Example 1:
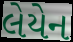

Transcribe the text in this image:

લેયેન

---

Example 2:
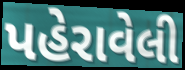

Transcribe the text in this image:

પહેરાવેલી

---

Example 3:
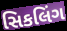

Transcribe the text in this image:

સિકલિંગ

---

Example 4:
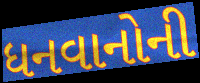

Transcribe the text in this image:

ધનવાનોની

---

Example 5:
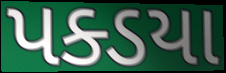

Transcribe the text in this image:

પક્ડયા